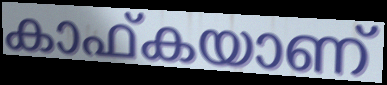
കാഫ്കയാണ്